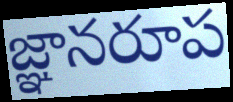
జ్ఞానరూప